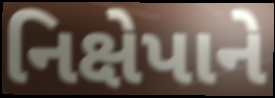
નિક્ષેપાને